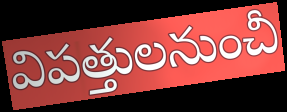
విపత్తులనుంచీ